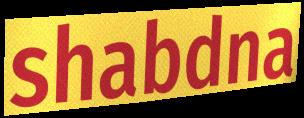
shabdna